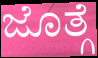
ಜೊತ್ಗೆ